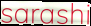
sarashi